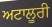
ਅਟਾਲੂਰੀ